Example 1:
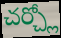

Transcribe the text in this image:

చర్చ్లో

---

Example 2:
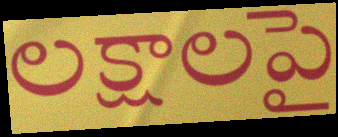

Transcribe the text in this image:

లక్షాలపై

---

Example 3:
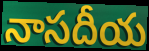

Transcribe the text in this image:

నాసదీయ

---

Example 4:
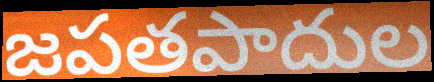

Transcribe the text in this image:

జపతపాదుల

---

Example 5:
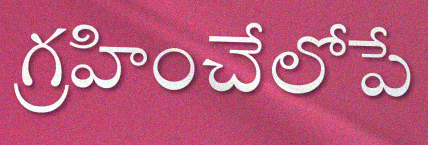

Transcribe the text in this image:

గ్రహించేలోపే